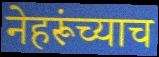
नेहरूंच्याच